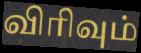
விரிவும்